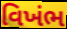
વિખંભ